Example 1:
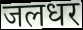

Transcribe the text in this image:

जलधर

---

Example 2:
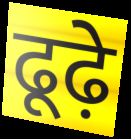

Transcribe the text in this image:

ढूढ़े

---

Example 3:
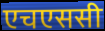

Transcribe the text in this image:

एचएससी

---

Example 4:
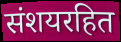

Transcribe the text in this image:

संशयरहित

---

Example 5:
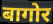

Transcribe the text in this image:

बागोर